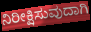
ನಿರೀಕ್ಷಿಸುವುದಾಗಿ